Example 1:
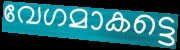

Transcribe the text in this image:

വേഗമാകട്ടെ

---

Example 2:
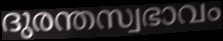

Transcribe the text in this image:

ദുരന്തസ്വഭാവം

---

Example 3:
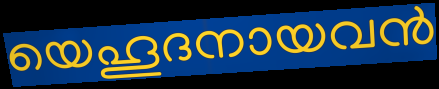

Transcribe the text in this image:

യെഹൂദനായവൻ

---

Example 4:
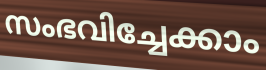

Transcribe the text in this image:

സംഭവിച്ചേക്കാം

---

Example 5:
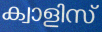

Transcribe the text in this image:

ക്വാളിസ്